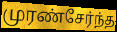
முரண்சேர்ந்த